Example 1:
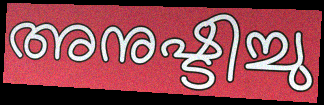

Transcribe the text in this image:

അനുഷ്ടിച്ചു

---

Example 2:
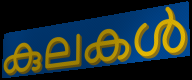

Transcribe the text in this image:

കുലകൾ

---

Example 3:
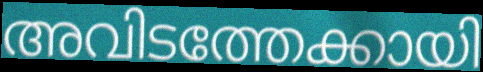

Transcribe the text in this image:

അവിടത്തേക്കായി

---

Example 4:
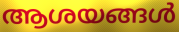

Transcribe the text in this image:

ആശയങ്ങൾ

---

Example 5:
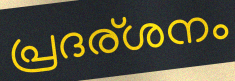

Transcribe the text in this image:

പ്രദര്ശനം